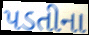
પડતીના